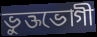
ভুক্তভোগী